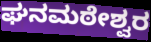
ಘನಮಠೇಶ್ವರ